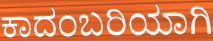
ಕಾದಂಬರಿಯಾಗಿ